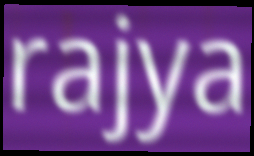
rajya